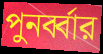
পুনর্ব্বার